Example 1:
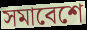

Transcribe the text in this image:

সমাবেশে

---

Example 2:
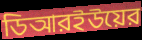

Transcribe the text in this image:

ডিআরইউয়ের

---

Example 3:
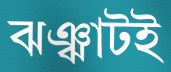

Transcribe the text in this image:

ঝঞ্ঝাটই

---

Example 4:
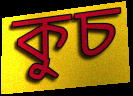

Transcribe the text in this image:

কুচ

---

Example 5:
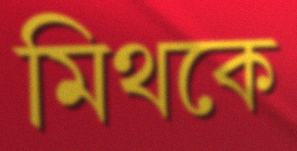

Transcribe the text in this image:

মিথকে